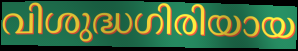
വിശുദ്ധഗിരിയായ